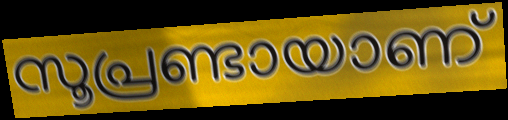
സൂപ്രണ്ടായാണ്